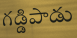
గడ్డిపాడు